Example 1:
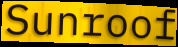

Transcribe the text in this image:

Sunroof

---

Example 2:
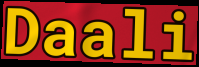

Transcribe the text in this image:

Daali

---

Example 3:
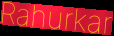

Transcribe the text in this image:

Rahurkar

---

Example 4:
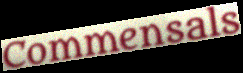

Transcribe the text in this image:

Commensals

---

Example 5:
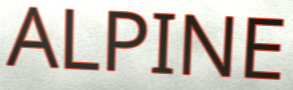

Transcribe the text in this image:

ALPINE